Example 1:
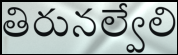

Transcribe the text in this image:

తిరునల్వేలి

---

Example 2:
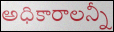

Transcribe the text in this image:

అధికారాలన్నీ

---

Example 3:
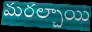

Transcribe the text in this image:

మరల్చాయి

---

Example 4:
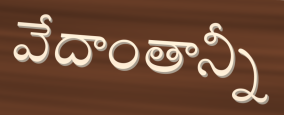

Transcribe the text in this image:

వేదాంతాన్నీ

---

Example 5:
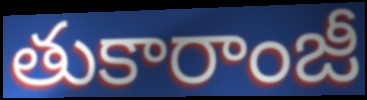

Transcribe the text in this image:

తుకారాంజీ